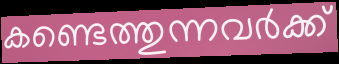
കണ്ടെത്തുന്നവർക്ക്